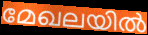
മേഖലയിൽ